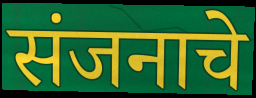
संजनाचे